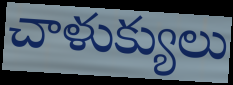
చాళుక్యులు